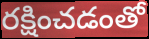
రక్షించడంతో